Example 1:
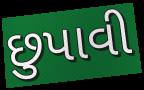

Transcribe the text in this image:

છુપાવી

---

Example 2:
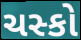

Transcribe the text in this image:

ચસ્કો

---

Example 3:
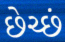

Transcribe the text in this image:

છેચ્છં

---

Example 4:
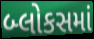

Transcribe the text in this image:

બ્લોકસમાં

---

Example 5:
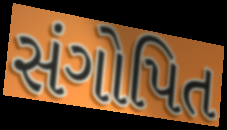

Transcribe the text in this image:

સંગોપિત